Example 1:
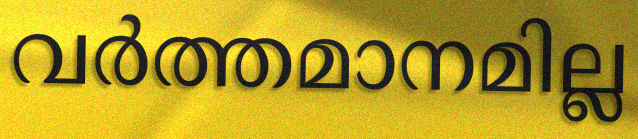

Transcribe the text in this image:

വർത്തമാനമില്ല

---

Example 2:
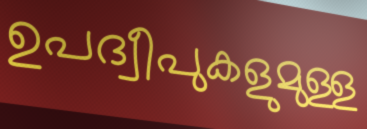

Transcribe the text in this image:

ഉപദ്വീപുകളുമുള്ള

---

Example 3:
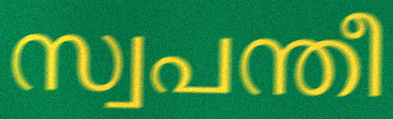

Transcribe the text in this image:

സ്വപന്തീ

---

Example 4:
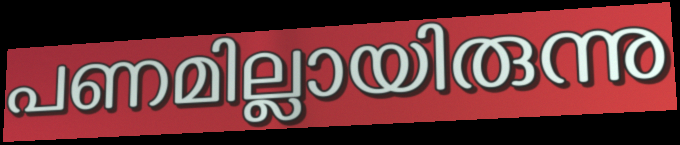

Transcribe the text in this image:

പണമില്ലായിരുന്നു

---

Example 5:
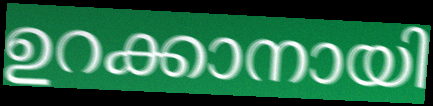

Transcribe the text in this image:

ഉറക്കാനായി